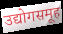
उद्योगसमूह